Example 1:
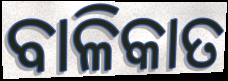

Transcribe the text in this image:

ବାଳିକାତ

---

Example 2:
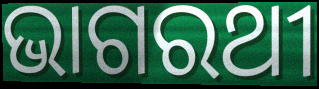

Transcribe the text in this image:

ଭାଗରଥୀ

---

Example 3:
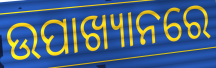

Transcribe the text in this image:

ଉପାଖ୍ୟାନରେ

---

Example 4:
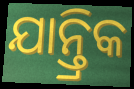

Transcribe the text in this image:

ଯାନ୍ତ୍ରିକ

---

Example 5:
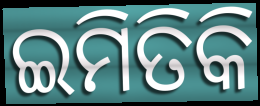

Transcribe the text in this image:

ଇମିତିକି